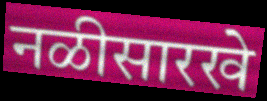
नळीसारखे